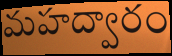
మహద్వారం